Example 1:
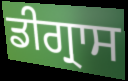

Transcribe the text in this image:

ਡੀਗ੍ਰਾਸ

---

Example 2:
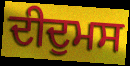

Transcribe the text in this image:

ਦੀਦੁਮਸ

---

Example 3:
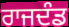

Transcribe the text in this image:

ਰਾਜਦੰਡ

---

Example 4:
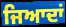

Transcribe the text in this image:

ਜਿਆਦਾਂ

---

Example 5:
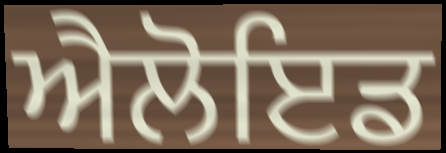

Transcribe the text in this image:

ਐਲੋਇਡ